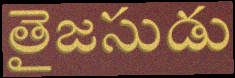
తైజసుడు